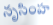
నృసింహ